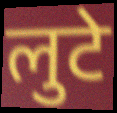
लुटे